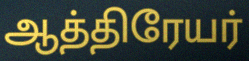
ஆத்திரேயர்